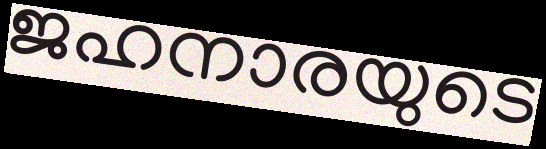
ജഹനാരയുടെ